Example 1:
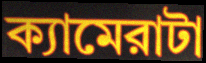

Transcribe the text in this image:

ক্যামেরাটা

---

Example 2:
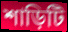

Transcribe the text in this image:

শাড়িটি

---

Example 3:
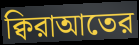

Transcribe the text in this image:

ক্বিরাআতের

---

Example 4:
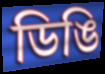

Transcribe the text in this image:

ডিঙি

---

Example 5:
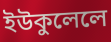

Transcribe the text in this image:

ইউকুলেলে